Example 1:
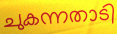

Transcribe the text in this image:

ചുകന്നതാടി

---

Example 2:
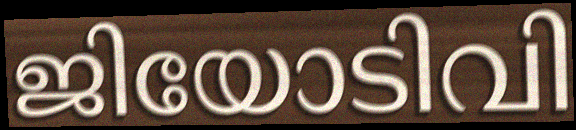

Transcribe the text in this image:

ജിയോടിവി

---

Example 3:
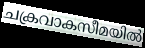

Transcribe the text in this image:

ചക്രവാകസീമയിൽ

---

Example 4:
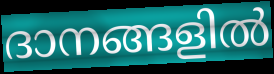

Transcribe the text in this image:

ദാനങ്ങളിൽ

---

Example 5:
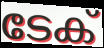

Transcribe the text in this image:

ടേക്